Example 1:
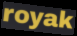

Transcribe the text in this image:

royak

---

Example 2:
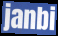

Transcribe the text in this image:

janbi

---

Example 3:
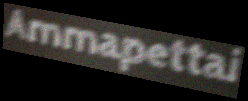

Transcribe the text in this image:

Ammapettai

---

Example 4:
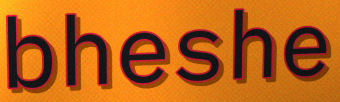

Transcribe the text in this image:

bheshe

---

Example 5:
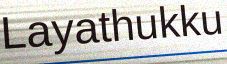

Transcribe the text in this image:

Layathukku